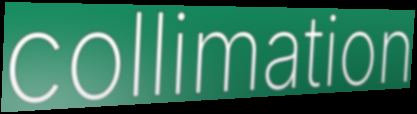
collimation